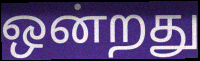
ஒன்றது